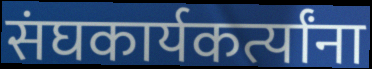
संघकार्यकर्त्यांना